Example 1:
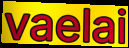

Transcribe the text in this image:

vaelai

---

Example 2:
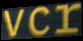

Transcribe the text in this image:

vcr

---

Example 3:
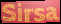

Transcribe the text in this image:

Sirsa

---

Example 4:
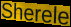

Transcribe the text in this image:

Sherele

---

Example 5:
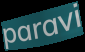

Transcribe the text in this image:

paravi